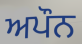
ਅਪੌਨ